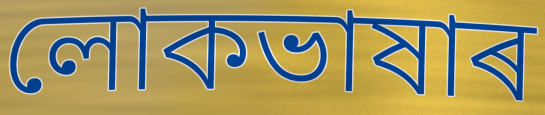
লোকভাষাৰ